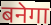
बनेगा